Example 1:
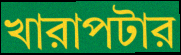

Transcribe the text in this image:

খারাপটার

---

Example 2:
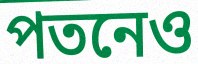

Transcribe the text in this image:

পতনেও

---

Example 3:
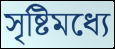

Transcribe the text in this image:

সৃষ্টিমধ্যে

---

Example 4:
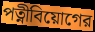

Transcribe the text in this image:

পত্নীবিয়োগের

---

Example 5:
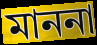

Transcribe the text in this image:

মাননা